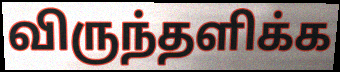
விருந்தளிக்க